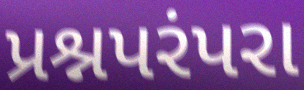
પ્રશ્નપરંપરા